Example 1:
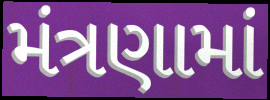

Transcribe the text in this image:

મંત્રણામાં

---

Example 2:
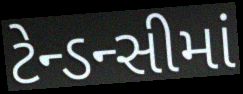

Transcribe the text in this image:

ટેન્ડન્સીમાં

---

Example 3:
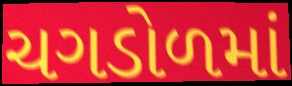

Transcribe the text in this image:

ચગડોળમાં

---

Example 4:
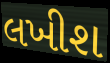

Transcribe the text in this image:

લખીશ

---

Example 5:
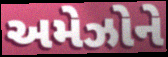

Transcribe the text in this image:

અમેઝોને